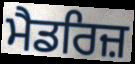
ਮੈਡਰਿਜ਼